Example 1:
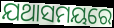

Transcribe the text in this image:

ଯଥାସମୟରେ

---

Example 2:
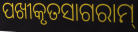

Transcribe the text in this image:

ପଖୀକୃତସାଗରାମ୍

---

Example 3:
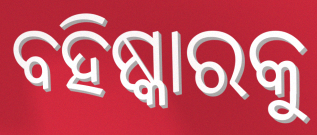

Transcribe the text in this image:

ବହିଷ୍କାରକୁ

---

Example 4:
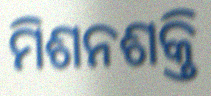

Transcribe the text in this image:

ମିଶନଶକ୍ତି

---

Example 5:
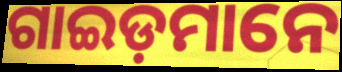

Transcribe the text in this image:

ଗାଇଡ଼ମାନେ